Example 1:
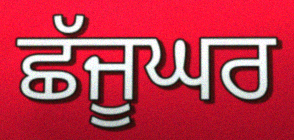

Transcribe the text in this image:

ਛੱਜੂਘਰ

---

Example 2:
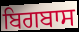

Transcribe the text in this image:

ਬਿਗਬਾਸ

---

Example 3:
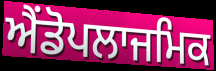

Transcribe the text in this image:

ਐਂਡੋਪਲਾਜਮਿਕ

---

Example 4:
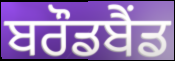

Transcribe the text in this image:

ਬਰੌਡਬੈਂਡ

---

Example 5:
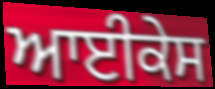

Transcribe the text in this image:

ਆਈਕੇਸ